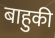
बाहुकी